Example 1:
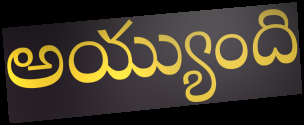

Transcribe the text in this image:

అయ్యుంది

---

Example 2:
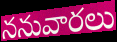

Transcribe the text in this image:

ననువారలు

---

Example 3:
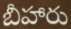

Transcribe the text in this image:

బీహారు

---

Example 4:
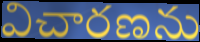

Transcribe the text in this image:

విచారణను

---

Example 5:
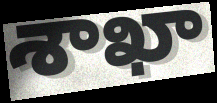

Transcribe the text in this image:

శాఖా